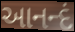
આનન્દં